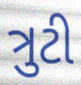
ત્રુટી